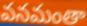
వనమంతా